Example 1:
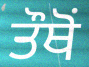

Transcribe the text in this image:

ਤੌਥੋਂ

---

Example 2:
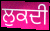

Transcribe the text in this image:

ਲੁਕਦੀ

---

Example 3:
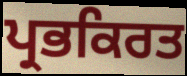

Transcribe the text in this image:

ਪ੍ਰਭਕਿਰਤ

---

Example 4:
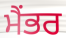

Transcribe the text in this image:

ਮੈਂਭਰ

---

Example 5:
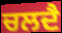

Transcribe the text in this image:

ਚਲਦੈ